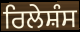
ਰਿਲੇਸ਼ੰਸ